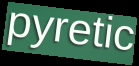
pyretic